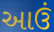
આઉં